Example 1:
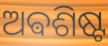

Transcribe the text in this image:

ଅଵଶିଷ୍ଟ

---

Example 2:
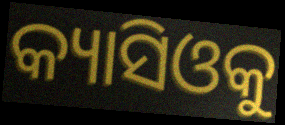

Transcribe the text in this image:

କ୍ୟାସିଓକୁ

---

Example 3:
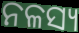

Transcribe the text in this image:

ନଳସ୍ୟ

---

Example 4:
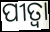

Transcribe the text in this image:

ପୀତ୍ବା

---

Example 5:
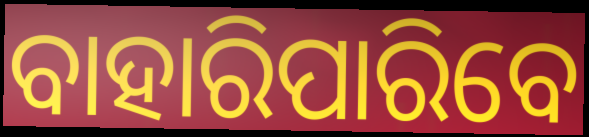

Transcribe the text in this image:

ବାହାରିପାରିବେ